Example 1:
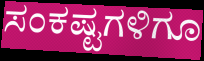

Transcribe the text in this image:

ಸಂಕಷ್ಟಗಳಿಗೂ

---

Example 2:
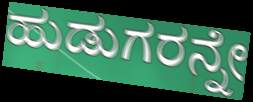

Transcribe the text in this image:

ಹುಡುಗರನ್ನೇ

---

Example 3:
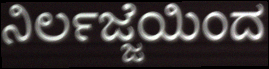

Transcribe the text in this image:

ನಿರ್ಲಜ್ಜೆಯಿಂದ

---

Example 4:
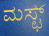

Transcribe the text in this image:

ಮಸ್ಟ್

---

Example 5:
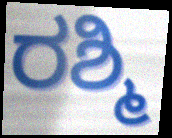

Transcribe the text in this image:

ರಶ್ಮಿ